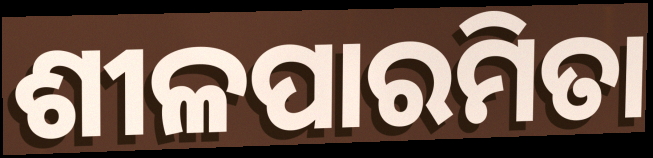
ଶୀଳପାରମିତା